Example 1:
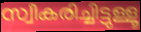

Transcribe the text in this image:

സ്വീകരിച്ചിട്ടുള്ളൂ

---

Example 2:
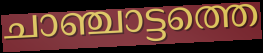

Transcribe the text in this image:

ചാഞ്ചാട്ടത്തെ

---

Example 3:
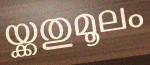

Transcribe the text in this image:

യ്ക്കതുമൂലം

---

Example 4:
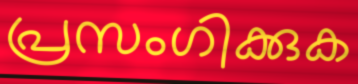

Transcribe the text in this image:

പ്രസംഗിക്കുക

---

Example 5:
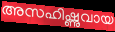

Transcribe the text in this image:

അസഹിഷ്ണുവായ